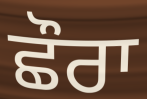
ਛੌਰਾ